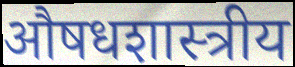
औषधशास्त्रीय